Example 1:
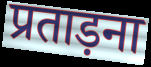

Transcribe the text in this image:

प्रताड़ना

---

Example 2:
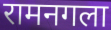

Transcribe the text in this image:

रामनगला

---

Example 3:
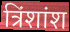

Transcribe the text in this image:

त्रिंशांश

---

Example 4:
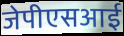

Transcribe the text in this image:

जेपीएसआई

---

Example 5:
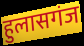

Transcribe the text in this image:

हुलासगंज